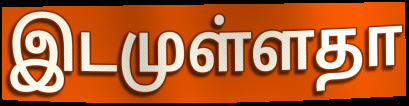
இடமுள்ளதா